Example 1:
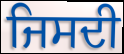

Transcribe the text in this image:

ਜਿਸਦੀ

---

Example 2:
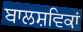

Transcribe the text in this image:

ਬਾਲਸ਼ਵਿਕਾਂ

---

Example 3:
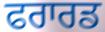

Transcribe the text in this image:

ਫਰਾਰਡ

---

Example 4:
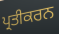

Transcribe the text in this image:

ਪ੍ਰਤੀਕਰਨ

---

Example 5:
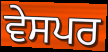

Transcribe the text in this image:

ਵੇਸਪਰ